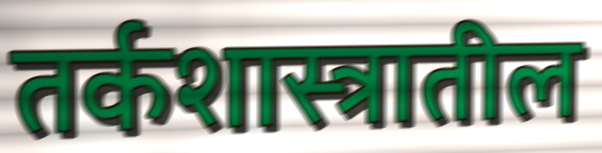
तर्कशास्त्रातील